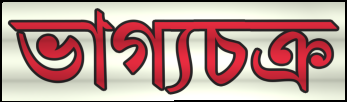
ভাগ্যচক্র